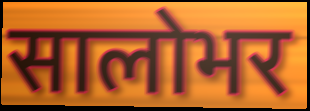
सालोभर